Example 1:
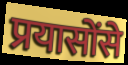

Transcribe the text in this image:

प्रयासोंसे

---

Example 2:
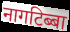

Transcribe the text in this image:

नागटिब्बा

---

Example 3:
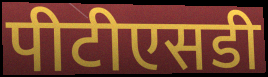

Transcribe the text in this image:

पीटीएसडी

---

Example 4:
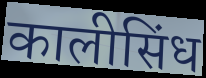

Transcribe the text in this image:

कालीसिंध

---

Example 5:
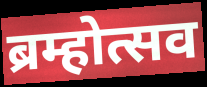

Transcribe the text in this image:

ब्रम्होत्सव